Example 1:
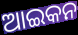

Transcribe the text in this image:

ଆଇକନ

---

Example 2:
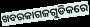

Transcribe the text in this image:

ଖବରକାଗଜଗୁଡିକରେ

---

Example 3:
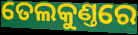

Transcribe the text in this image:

ତେଲକୁଣ୍ତରେ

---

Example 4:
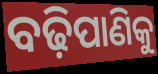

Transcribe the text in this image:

ବଢ଼ିପାଣିକୁ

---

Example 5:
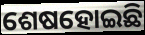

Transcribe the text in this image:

ଶେଷହୋଇଛି